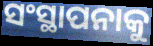
ସଂସ୍ଥାପନାକୁ